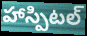
హాస్పిటల్